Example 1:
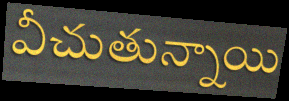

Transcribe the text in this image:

వీచుతున్నాయి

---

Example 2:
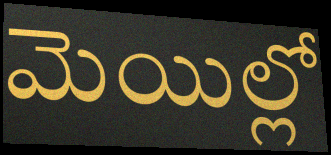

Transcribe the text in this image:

మెయిల్లో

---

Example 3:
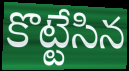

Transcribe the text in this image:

కొట్టేసిన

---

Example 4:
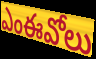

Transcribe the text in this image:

ఎంఈవోలు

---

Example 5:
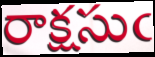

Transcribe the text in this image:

రాక్షసుఁ